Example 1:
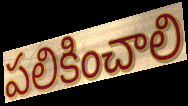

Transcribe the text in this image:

పలికించాలి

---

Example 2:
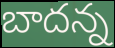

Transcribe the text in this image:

బాదన్న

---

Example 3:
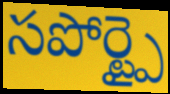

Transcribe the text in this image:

సపోర్ట్పై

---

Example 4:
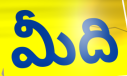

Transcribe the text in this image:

మీది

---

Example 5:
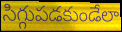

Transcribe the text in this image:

సిగ్గుపడకుండేలా